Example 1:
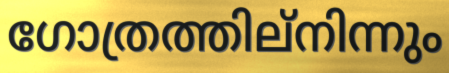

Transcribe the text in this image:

ഗോത്രത്തില്നിന്നും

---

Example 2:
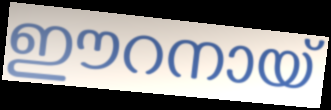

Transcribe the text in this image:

ഈറനായ്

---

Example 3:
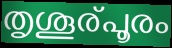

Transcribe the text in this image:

തൃശൂര്പൂരം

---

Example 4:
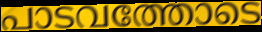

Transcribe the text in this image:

പാടവത്തോടെ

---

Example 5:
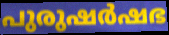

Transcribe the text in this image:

പുരുഷർഷഭ